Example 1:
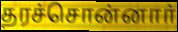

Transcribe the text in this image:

தரச்சொன்னார்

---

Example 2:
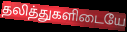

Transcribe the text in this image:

தலித்துகளிடையே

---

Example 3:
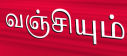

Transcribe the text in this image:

வஞ்சியும்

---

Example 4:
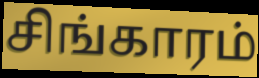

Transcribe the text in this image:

சிங்காரம்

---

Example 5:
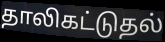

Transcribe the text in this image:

தாலிகட்டுதல்